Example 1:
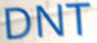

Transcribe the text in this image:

DNT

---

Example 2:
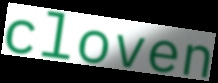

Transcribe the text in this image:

cloven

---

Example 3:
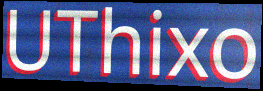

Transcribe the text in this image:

UThixo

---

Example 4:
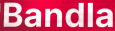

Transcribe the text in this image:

Bandla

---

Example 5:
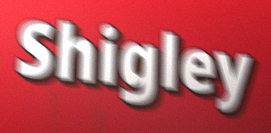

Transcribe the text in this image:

Shigley